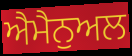
ਐਮੈਨੁਅਲ